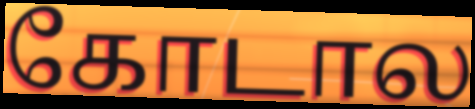
கோடால